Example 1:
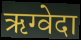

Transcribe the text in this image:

ऋग्वेदा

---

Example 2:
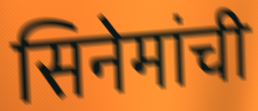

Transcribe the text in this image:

सिनेमांची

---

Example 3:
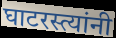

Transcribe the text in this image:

घाटरस्त्यांनी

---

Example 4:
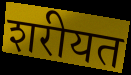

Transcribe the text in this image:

शरीयत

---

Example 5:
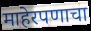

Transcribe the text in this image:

माहेरपणाचा